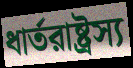
ধার্তরাষ্ট্রস্য